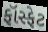
ફૉસ્ફેટ